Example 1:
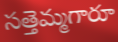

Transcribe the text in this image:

సత్తెమ్మగారూ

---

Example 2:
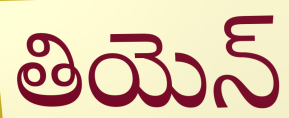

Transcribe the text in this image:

తియెన్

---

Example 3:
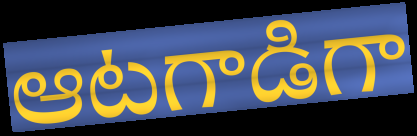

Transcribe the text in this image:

ఆటగాడిగా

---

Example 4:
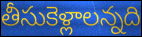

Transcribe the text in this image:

తీసుకెళ్లాలన్నది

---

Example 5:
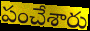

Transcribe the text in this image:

పంచేశారు